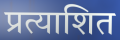
प्रत्याशित